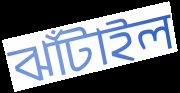
ঝাঁটাইল